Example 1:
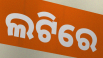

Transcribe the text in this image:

ଲଟିରେ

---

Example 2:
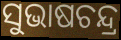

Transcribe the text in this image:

ସୁଭାଷଚନ୍ଦ୍ର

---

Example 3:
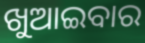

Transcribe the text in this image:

ଖୁଆଇବାର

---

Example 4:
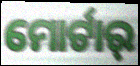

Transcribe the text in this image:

ମୋର୍ଟାର୍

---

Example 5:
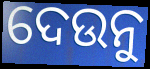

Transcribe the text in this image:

ଦେଉନୁ